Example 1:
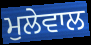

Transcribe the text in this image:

ਮੁਲੇਵਾਲ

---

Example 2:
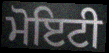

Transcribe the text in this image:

ਮੋਇਟੀ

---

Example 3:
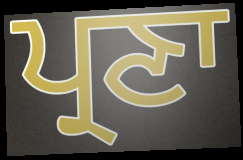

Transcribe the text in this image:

ਪ੍ਰਣਾ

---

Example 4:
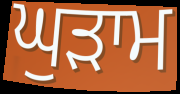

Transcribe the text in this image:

ਘੁੜਾਮ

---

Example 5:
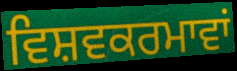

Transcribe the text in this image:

ਵਿਸ਼ਵਕਰਮਾਵਾਂ